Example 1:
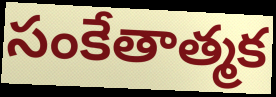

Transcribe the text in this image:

సంకేతాత్మక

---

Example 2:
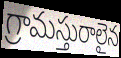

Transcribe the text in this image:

గ్రామస్తురాలైన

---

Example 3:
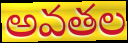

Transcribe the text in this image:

అవతల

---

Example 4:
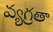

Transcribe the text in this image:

వ్యగ్రతా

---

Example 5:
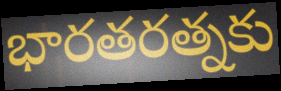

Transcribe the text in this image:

భారతరత్నకు